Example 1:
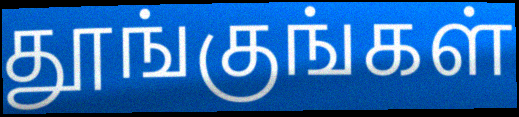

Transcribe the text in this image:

தூங்குங்கள்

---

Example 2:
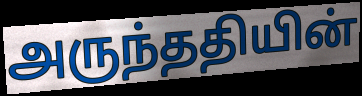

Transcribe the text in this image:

அருந்ததியின்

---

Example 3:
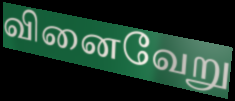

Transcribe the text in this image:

வினைவேறு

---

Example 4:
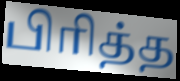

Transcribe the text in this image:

பிரித்த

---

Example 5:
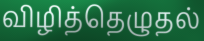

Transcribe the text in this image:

விழித்தெழுதல்